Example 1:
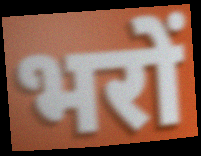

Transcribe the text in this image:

भरों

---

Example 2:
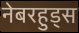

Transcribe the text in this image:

नेबरहुड्स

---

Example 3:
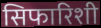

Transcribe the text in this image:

सिफारिशी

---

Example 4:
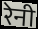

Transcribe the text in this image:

रेनी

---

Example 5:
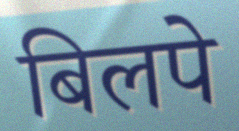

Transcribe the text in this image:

बिलपे